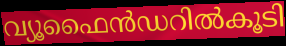
വ്യൂഫൈൻഡറിൽകൂടി